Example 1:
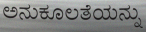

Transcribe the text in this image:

ಅನುಕೂಲತೆಯನ್ನು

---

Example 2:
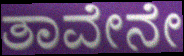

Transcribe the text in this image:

ತಾವೇನೇ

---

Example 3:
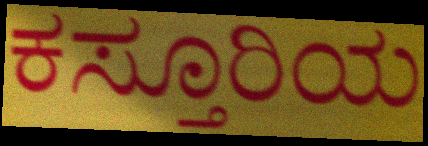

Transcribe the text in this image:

ಕಸ್ತೂರಿಯ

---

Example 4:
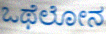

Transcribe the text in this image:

ಒಥೆಲೋನ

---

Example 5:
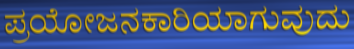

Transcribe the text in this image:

ಪ್ರಯೋಜನಕಾರಿಯಾಗುವುದು